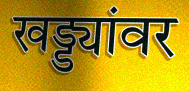
खड्ड्यांवर